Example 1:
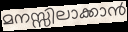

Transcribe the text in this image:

മനസ്സിലാക്കാൻ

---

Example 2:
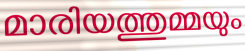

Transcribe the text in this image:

മാരിയത്തുമ്മയും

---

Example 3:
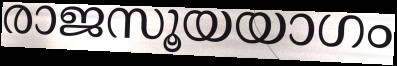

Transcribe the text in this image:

രാജസൂയയാഗം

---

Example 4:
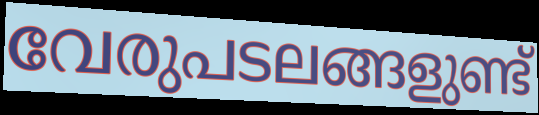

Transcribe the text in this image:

വേരുപടലങ്ങളുണ്ട്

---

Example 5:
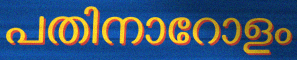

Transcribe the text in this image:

പതിനാറോളം